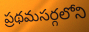
ప్రథమసర్గలోని